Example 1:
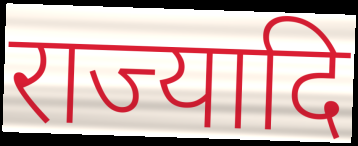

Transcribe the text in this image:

राज्यादि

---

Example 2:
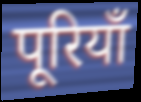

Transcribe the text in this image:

पूरियाँ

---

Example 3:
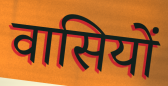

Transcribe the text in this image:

वासियों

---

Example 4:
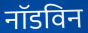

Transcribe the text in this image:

नॉडविन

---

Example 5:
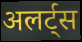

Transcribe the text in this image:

अलर्ट्स